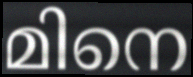
മിനെ